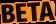
BETA